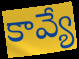
కావ్యే